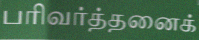
பரிவர்த்தனைக்